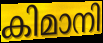
കിമാനി